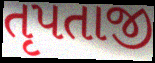
તૃપતાજી